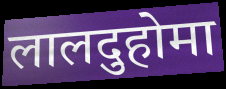
लालदुहोमा